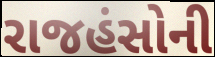
રાજહંસોની